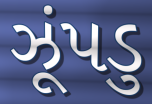
ઝૂંપડુ